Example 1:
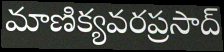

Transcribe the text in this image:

మాణిక్యవరప్రసాద్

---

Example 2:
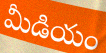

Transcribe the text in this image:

మీడియం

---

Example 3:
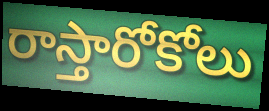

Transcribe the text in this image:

రాస్తారోకోలు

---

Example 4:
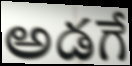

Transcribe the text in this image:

అడగే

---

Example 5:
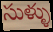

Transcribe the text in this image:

సుళ్ళు